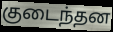
குடைந்தன